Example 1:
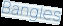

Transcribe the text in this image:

Bangles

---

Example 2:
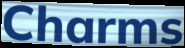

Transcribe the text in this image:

Charms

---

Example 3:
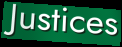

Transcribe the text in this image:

Justices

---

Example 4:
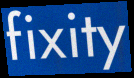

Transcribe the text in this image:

fixity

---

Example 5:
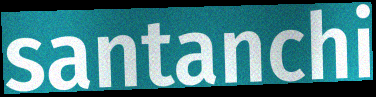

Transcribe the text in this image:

santanchi